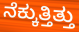
ನೆಕ್ಕುತ್ತಿತ್ತು